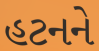
હટનને